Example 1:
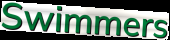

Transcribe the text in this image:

Swimmers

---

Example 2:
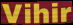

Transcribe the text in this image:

Vihir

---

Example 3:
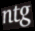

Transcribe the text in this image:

ntg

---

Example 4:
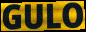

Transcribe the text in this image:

GULO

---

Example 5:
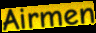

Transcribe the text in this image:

Airmen